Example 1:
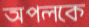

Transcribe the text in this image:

অপলকে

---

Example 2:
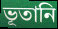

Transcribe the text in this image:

ভূতানি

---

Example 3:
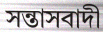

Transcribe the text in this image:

সন্তাসবাদী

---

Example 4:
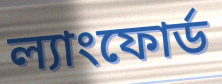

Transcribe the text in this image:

ল্যাংফোর্ড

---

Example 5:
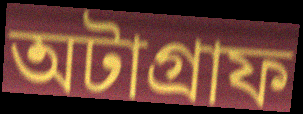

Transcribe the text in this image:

অটাগ্রাফ